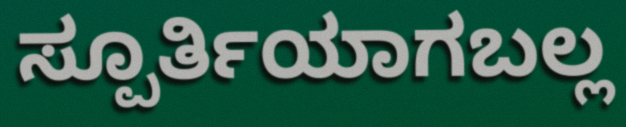
ಸ್ಪೂರ್ತಿಯಾಗಬಲ್ಲ